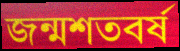
জন্মশতবর্ষ